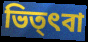
ভিত্ৎবা